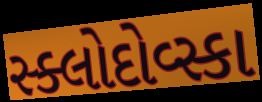
સ્ક્લોદોવ્સ્કા